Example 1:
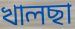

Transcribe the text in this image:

খালছা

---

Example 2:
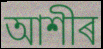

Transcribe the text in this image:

আশীৰ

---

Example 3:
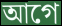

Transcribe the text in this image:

আগে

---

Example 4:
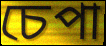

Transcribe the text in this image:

চেপা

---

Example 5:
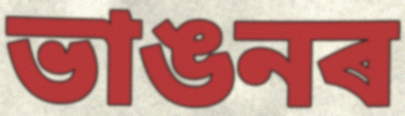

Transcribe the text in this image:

ভাঙনৰ